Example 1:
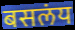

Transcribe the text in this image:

बसलंय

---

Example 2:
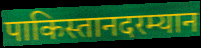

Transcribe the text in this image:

पाकिस्तानदरम्यान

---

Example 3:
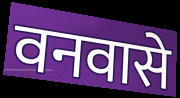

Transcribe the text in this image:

वनवासे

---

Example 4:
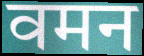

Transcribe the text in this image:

वमन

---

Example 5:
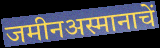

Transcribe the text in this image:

जमीनअस्मानाचें